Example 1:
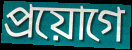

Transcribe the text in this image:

প্রয়োগে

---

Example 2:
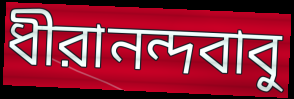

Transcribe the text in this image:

ধীরানন্দবাবু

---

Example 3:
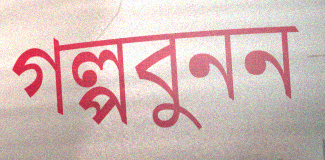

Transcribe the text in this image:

গল্পবুনন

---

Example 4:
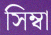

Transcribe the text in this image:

সিম্বা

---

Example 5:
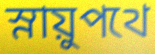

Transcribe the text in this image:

স্নায়ুপথে